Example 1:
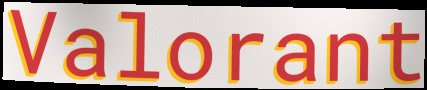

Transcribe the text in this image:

Valorant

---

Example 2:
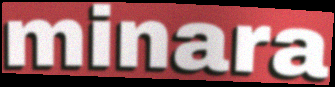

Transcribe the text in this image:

minara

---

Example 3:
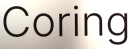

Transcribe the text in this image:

Coring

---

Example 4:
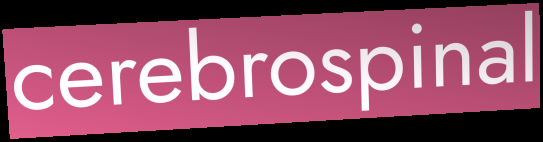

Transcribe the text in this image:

cerebrospinal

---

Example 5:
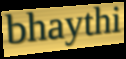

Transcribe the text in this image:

bhaythi